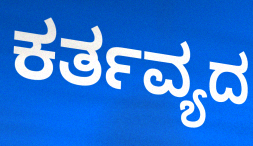
ಕರ್ತವ್ಯದ